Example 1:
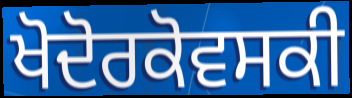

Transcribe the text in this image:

ਖੋਦੋਰਕੋਵਸਕੀ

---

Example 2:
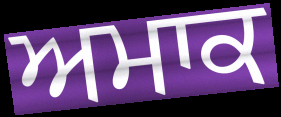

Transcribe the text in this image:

ਅਮਾਕ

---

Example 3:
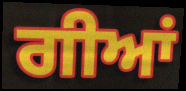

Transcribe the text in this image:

ਗੀਆਂ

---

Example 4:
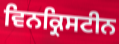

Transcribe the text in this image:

ਵਿਨਕ੍ਰਿਸਟੀਨ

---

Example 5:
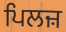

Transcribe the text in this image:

ਪਿਲਜ਼